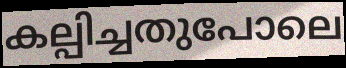
കല്പിച്ചതുപോലെ